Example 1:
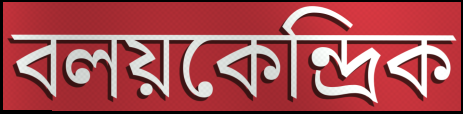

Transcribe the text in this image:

বলয়কেন্দ্রিক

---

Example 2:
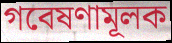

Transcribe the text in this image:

গবেষণামূলক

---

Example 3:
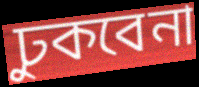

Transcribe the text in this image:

ঢুকবেনা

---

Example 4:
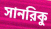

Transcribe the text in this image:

সানরিকু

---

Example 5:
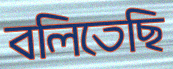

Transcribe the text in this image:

বলিতেছি